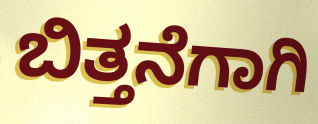
ಬಿತ್ತನೆಗಾಗಿ